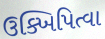
ઉક્ખિપિત્વા